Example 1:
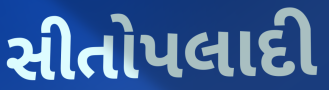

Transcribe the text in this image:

સીતોપલાદી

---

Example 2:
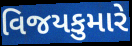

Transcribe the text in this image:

વિજયકુમારે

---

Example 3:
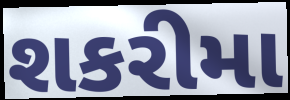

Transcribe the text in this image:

શકરીમા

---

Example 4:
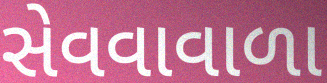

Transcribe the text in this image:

સેવવાવાળા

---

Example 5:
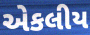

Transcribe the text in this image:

એકલીય